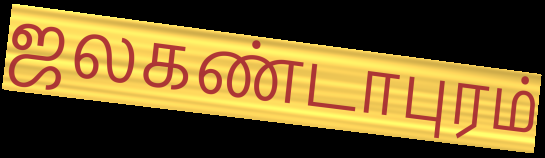
ஜலகண்டாபுரம்